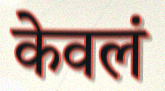
केवलं